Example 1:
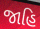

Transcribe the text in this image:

જાહિ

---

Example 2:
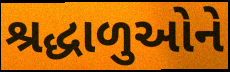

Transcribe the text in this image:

શ્રદ્ધાળુઓને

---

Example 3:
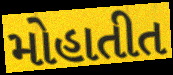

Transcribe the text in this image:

મોહાતીત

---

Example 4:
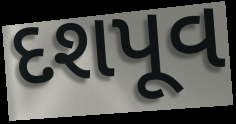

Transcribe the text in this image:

દશપૂવ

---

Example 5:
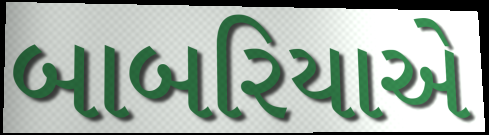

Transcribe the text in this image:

બાબરિયાએ